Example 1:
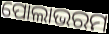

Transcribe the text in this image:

ପୋଲାଭରମ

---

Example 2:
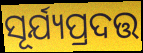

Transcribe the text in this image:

ସୂର୍ଯ୍ୟପ୍ରଦତ୍ତ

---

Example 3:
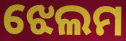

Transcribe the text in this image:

ଝେଲମ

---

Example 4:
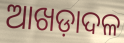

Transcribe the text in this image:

ଆଖଡ଼ାଦଳ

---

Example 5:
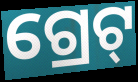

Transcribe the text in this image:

ଗ୍ରେଟ୍